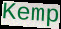
Kemp